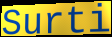
Surti